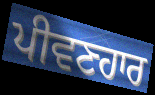
ਪੀਵਣਹਾਰ